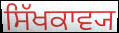
ਸਿੱਖਕਾਵ੍ਯ